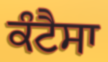
ਕੰਟੈਸਾ